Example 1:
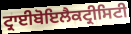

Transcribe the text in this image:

ਟ੍ਰਾਈਬੋਇਲੈਕਟ੍ਰੀਸਿਟੀ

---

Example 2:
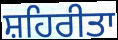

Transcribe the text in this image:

ਸ਼ਹਿਰੀਤਾ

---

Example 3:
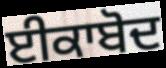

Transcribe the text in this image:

ਈਕਾਬੋਦ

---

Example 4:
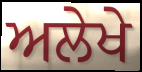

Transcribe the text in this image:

ਅਲੇਖੇ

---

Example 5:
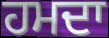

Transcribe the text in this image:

ਹਮਦਾ